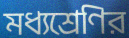
মধ্যশ্রেণির